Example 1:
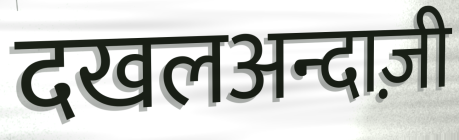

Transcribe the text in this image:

दखलअन्दाज़ी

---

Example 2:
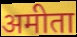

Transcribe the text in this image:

अमीता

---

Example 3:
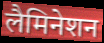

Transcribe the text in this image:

लैमिनेशन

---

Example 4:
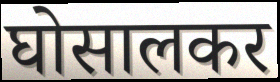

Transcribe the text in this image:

घोसालकर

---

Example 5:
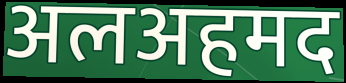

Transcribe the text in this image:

अलअहमद